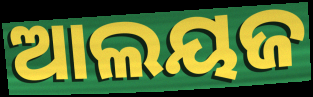
ଆଲୟଜ